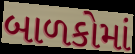
બાળકોમાં